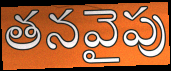
తనవైపు